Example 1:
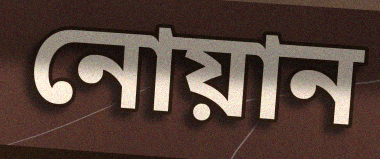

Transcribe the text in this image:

নোয়ান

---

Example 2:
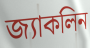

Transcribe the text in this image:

জ্যাকলিন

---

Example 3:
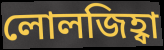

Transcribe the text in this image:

লোলজিহ্বা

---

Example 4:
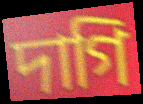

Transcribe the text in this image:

দাগি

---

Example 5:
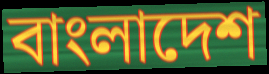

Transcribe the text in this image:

বাংলাদেশ